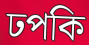
ঢপকি